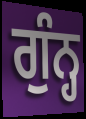
ਗੁੰਨ੍ਹ